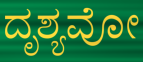
ದೃಶ್ಯವೋ